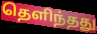
தெளிந்தது